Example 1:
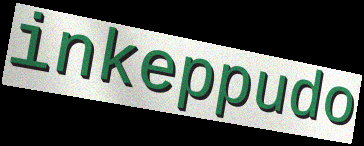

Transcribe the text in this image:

inkeppudo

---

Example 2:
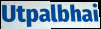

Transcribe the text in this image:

Utpalbhai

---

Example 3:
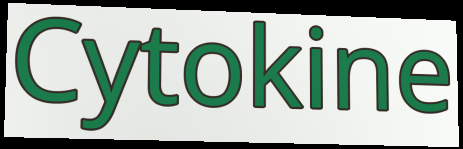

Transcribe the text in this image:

Cytokine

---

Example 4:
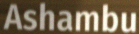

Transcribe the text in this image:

Ashambu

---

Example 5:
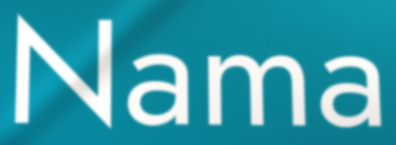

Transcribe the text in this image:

Nama